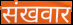
संखवार